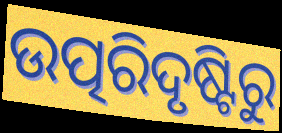
ଉତ୍ପରିଦୃଷ୍ଟିରୁ